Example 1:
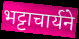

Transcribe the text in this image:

भट्टाचार्यने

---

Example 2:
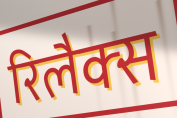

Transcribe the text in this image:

रिलैक्‍स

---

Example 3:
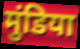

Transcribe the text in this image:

मुंडिया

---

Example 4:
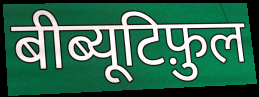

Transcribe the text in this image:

बीब्यूटिफ़ुल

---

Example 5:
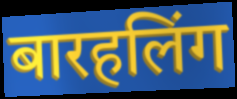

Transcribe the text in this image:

बारहलिंग